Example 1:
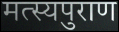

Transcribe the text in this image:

मत्स्यपुराण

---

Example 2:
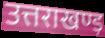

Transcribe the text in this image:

उत्तराखण्ड़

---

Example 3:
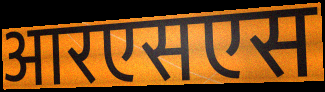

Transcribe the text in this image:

आरएसएस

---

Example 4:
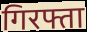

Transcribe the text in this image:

गिरफ्ता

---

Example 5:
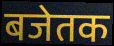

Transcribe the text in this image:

बजेतक